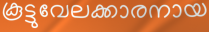
കൂട്ടുവേലക്കാരനായ